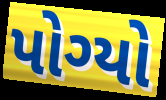
પોગ્યો